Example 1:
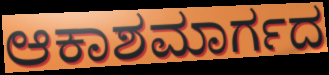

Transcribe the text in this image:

ಆಕಾಶಮಾರ್ಗದ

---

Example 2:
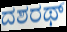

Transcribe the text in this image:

ದಶರಥ್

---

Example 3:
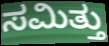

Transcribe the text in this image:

ಸಮಿತ್ತು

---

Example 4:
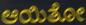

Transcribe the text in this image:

ಆಯಿತೋ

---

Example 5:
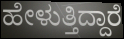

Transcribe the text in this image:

ಹೇಳುತ್ತಿದ್ದಾರೆ